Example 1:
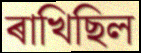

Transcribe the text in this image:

ৰাখিছিল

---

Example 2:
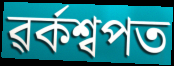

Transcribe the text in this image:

ৱৰ্কশ্বপত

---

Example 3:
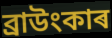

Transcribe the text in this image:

ব্ৰাউংকাৰ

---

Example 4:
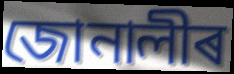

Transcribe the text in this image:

জোনালীৰ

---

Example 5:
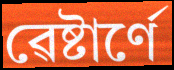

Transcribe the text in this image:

ৱেষ্টাৰ্ণে